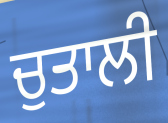
ਚੁਤਾਲੀ